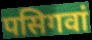
पसिगवां